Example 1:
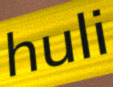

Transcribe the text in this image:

huli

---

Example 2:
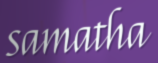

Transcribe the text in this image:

samatha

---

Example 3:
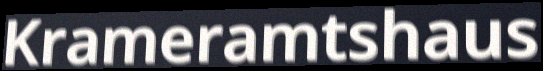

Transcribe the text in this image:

Krameramtshaus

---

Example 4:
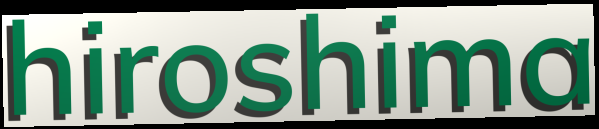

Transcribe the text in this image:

hiroshima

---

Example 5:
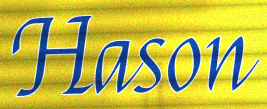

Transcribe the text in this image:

Hason